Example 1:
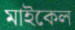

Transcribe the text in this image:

মাইকেল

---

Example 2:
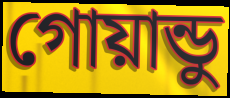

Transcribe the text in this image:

গোয়ান্ডু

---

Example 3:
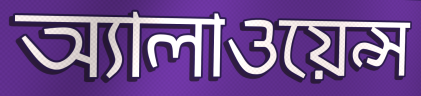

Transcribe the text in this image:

অ্যালাওয়েন্স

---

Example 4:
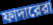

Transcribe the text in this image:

ফাদারেরা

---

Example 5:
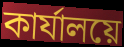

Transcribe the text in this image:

কার্যালয়ে